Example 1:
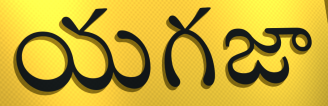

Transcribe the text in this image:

యగజా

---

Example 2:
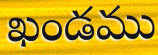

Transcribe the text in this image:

ఖండము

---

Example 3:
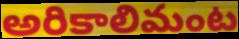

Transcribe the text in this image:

అరికాలిమంట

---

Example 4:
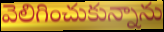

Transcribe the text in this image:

వెలిగించుకున్నాను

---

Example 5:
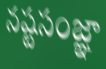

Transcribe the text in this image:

నష్టసంజ్ఞా